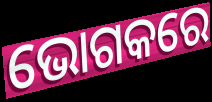
ଭୋଗକରେ